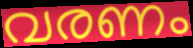
വരണം